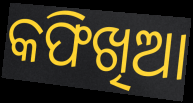
କଫିଖିଆ